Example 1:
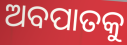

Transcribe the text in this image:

ଅବପାତକୁ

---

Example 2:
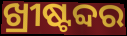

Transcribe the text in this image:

ଖ୍ରୀଷ୍ଟବ୍ଦର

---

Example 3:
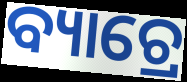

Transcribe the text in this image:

ବ୍ୟାଚ୍ରେ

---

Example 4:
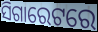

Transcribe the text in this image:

ସିଗାରେଟରେ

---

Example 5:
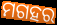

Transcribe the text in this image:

ମଗହର